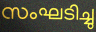
സംഘടിച്ചു